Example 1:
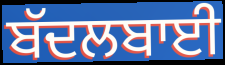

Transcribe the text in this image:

ਬੱਦਲਬਾਈ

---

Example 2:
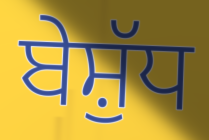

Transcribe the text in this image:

ਬੇਸ਼ੁੱਧ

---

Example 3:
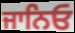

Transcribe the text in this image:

ਜਾਨਿਓ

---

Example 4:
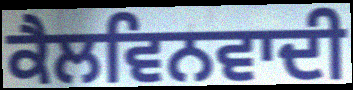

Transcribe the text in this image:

ਕੈਲਵਿਨਵਾਦੀ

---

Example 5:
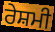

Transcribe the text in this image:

ਰੇਸ਼ਮੀ